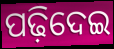
ପଢ଼ିଦେଇ